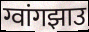
ग्वांगझाउ